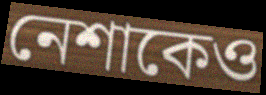
নেশাকেও